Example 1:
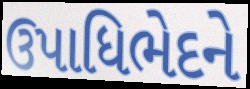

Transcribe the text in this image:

ઉપાધિભેદને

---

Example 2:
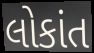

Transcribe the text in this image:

લોકાંત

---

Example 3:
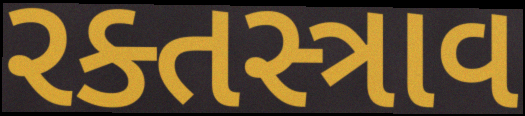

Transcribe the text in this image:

રક્તસ્ત્રાવ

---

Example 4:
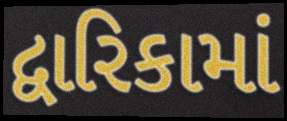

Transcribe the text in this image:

દ્વારિકામાં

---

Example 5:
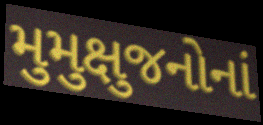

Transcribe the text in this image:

મુમુક્ષુજનોનાં